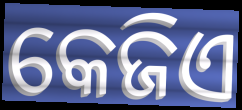
କେଜିଏ